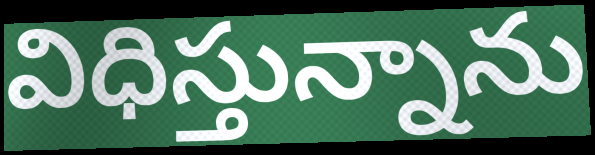
విధిస్తున్నాను